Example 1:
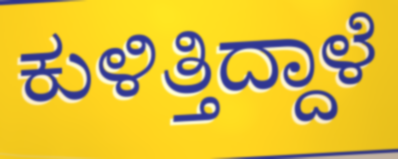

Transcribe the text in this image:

ಕುಳಿತ್ತಿದ್ದಾಳೆ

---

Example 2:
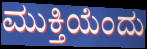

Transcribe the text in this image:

ಮುಕ್ತಿಯೆಂದು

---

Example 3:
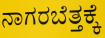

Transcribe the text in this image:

ನಾಗರಬೆತ್ತಕ್ಕೆ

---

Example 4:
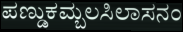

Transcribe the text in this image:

ಪಣ್ಡುಕಮ್ಬಲಸಿಲಾಸನಂ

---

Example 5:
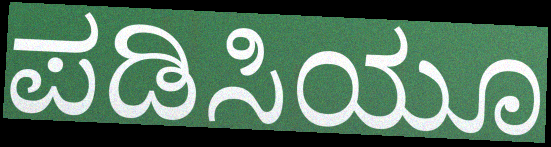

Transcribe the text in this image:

ಪಡಿಸಿಯೂ